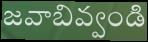
జవాబివ్వండి